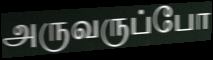
அருவருப்போ